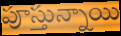
పూస్తున్నాయి